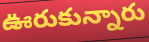
ఊరుకున్నారు